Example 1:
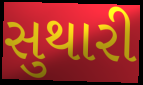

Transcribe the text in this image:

સુથારી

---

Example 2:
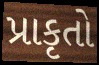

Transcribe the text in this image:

પ્રાકૃતો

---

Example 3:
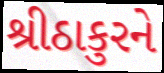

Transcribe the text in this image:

શ્રીઠાકુરને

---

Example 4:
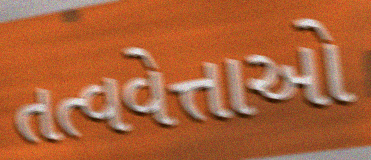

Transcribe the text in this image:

તત્વવેત્તાઓ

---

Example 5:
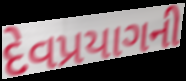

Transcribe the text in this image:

દેવપ્રયાગની